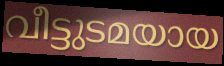
വീട്ടുടമയായ